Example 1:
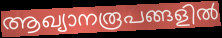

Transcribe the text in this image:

ആഖ്യാനരൂപങ്ങളിൽ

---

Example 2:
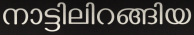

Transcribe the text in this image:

നാട്ടിലിറങ്ങിയ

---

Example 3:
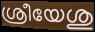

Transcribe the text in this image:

ശ്രീയേശു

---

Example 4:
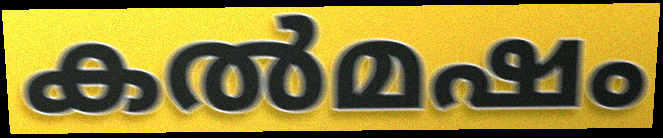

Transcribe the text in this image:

കൽമഷം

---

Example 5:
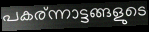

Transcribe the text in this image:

പകര്ന്നാട്ടങ്ങളുടെ